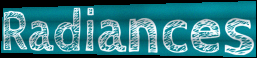
Radiances